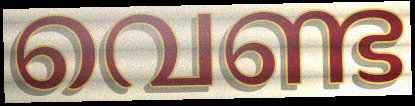
വെണ്ട